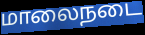
மாலைநடை